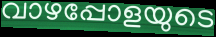
വാഴപ്പോളയുടെ